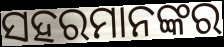
ସହରମାନଙ୍କର